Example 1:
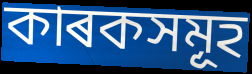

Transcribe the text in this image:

কাৰকসমূহ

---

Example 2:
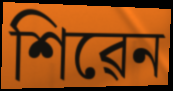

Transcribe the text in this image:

শিৱেন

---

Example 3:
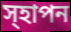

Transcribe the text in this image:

স্হাপন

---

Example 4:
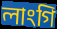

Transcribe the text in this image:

লাংগি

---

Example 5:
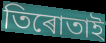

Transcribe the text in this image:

তিৰোতাই